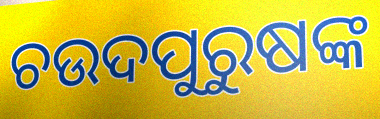
ଚଉଦପୁରୁଷଙ୍କ